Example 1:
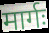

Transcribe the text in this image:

मार्गः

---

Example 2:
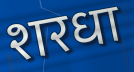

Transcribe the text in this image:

शरधा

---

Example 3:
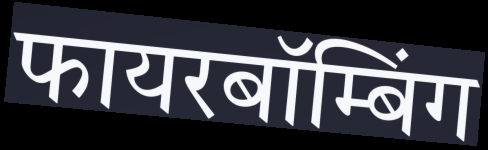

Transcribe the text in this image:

फायरबॉम्बिंग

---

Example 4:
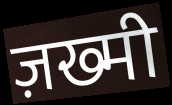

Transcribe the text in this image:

ज़ख्मी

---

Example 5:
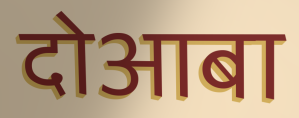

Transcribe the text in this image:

दोआबा